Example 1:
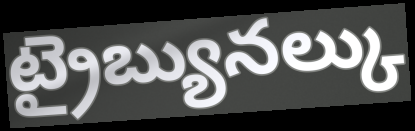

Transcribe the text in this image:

ట్రైబ్యునల్కు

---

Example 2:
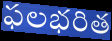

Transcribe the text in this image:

ఫలభరిత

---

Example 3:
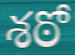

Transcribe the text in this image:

శఠో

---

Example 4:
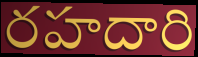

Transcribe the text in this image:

రహదారి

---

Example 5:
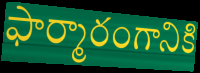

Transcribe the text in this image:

ఫార్మారంగానికి